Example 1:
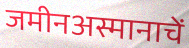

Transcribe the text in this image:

जमीनअस्मानाचें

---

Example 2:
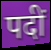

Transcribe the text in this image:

पदीं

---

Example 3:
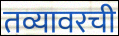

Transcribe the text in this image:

तव्यावरची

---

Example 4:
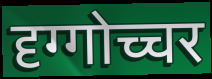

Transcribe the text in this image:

दृग्गोच्चर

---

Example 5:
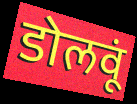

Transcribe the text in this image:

डोलवूं